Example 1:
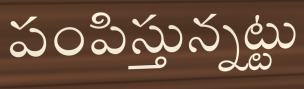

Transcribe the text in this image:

పంపిస్తున్నట్టు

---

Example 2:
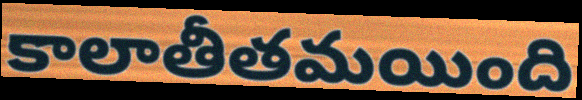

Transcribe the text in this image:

కాలాతీతమయింది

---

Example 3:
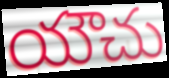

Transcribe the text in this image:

యౌచు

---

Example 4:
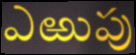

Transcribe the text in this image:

ఎఱుపు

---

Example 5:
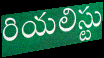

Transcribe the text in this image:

రియలిస్టు